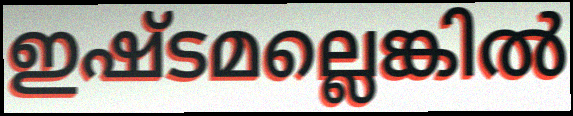
ഇഷ്ടമല്ലെങ്കിൽ